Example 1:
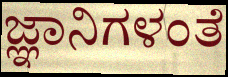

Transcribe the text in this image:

ಜ್ಞಾನಿಗಳಂತೆ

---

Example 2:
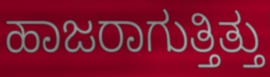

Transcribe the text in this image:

ಹಾಜರಾಗುತ್ತಿತ್ತು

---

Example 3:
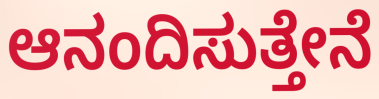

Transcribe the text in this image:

ಆನಂದಿಸುತ್ತೇನೆ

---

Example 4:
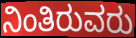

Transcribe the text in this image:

ನಿಂತಿರುವರು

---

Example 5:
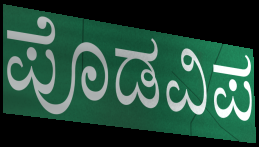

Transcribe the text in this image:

ಪೊಡವಿಪ